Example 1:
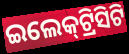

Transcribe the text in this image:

ଇଲେକ୍‌ଟ୍ରିସିଟି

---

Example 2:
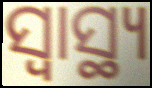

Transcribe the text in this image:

ସ୍ୱାସ୍ଥ୍ୟ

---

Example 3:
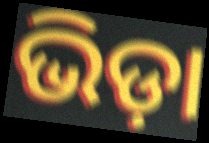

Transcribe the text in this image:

ଭିଡ଼ା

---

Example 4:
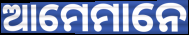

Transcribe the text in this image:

ଆମେମାନେ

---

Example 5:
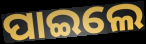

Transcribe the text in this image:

ପାଇଲେ